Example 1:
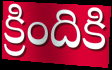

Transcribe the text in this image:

క్రిందికి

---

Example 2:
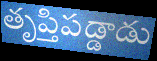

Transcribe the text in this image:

తృప్తిపడ్డాడు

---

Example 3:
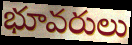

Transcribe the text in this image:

భూవరులు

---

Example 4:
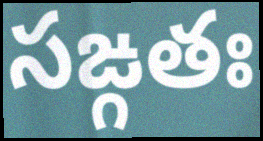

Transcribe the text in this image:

సఙ్గతః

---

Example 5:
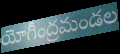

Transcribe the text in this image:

యోగీంద్రమండల